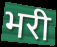
भरी